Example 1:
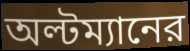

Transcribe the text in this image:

অল্টম্যানের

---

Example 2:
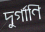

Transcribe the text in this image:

দুর্গাণি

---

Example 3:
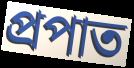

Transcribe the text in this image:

প্রপাত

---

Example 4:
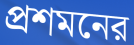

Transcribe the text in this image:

প্রশমনের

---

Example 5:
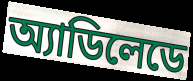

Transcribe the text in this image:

অ্যাডিলেডে